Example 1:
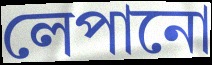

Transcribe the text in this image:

লেপানো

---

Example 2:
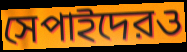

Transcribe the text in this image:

সেপাইদেরও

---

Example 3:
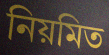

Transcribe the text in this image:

নিয়মিত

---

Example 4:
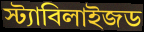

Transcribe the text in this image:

স্ট্যাবিলাইজড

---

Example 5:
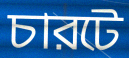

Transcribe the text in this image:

চারটে